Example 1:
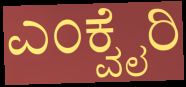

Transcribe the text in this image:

ಎಂಕ್ವೈರಿ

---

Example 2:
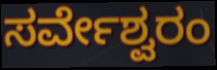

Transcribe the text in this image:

ಸರ್ವೇಶ್ವರಂ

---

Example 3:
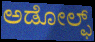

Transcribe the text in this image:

ಅಡೋಲ್ಫ್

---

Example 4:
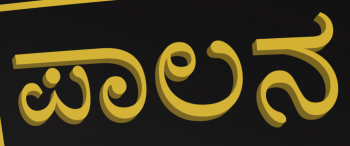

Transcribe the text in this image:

ಪಾಲನ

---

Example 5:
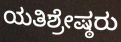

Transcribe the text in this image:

ಯತಿಶ್ರೇಷ್ಠರು